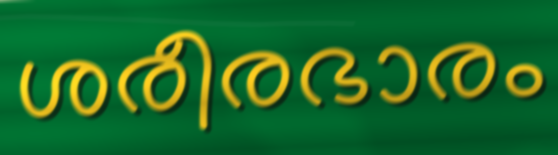
ശരീരഭാരം